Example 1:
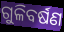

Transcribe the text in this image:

ଗୁଳିବର୍ଷଣ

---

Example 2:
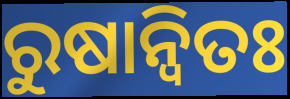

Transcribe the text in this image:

ରୁଷାନ୍ଵିତଃ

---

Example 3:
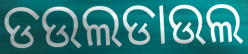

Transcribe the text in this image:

ଡଉଲଡାଉଲ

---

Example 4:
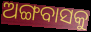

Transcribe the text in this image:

ଅଙ୍ଗବାସକୁ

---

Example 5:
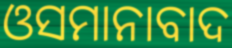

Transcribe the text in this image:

ଓସମାନାବାଦ